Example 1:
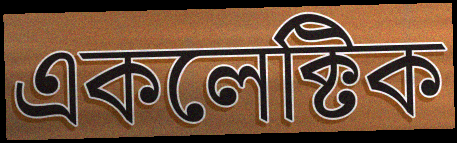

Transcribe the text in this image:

একলেক্টিক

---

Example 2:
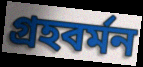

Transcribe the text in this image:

গ্রহবর্মন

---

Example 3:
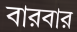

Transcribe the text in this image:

বারবার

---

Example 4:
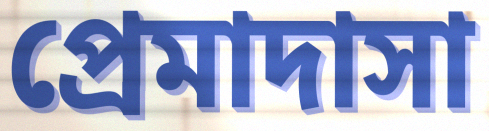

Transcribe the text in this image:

প্রেমাদাসা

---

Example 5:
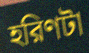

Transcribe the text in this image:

হরিণটা